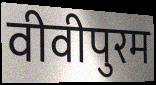
वीवीपुरम